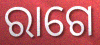
ରାଗେ